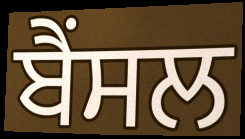
ਬੈਂਸਲ